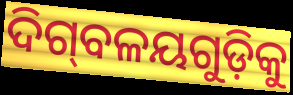
ଦିଗ୍‌ବଳୟଗୁଡ଼ିକୁ